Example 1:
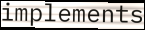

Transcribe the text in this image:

implements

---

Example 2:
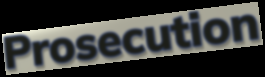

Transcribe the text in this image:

Prosecution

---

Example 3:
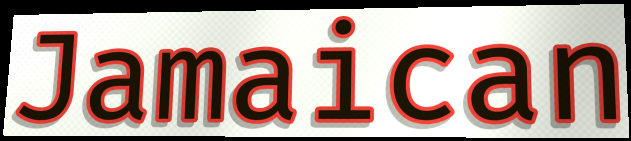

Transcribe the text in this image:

Jamaican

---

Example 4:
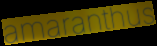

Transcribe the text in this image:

amaranthus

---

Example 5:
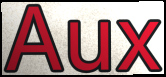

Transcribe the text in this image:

Aux